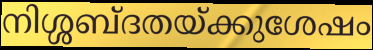
നിശ്ശബ്ദതയ്ക്കുശേഷം